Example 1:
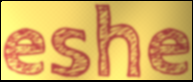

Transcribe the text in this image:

eshe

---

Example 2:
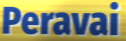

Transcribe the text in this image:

Peravai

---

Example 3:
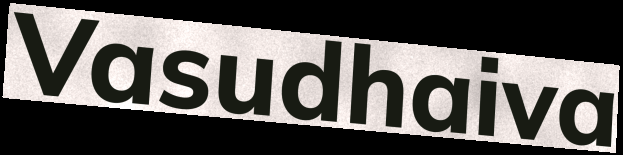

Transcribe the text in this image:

Vasudhaiva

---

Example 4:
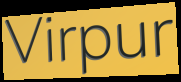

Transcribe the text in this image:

Virpur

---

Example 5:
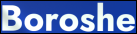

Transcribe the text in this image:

Boroshe